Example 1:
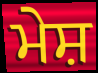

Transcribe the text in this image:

ਮੇਸ਼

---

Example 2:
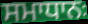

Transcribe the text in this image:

ਸਮਾਧਾਨਃ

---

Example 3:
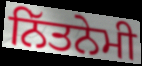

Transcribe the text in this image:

ਨਿੱਤਨੇਮੀ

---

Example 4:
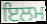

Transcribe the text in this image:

ਇਲਮ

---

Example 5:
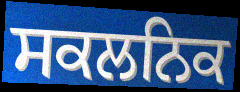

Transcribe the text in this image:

ਸਕਲਨਿਕ